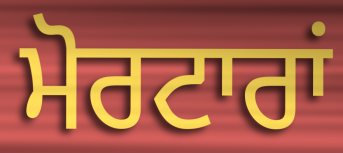
ਮੋਰਟਾਰਾਂ